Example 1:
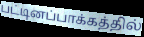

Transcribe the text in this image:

பட்டினப்பாக்கத்தில்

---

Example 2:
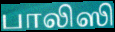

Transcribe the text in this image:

பாலிஸி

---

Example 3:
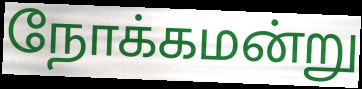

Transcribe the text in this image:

நோக்கமன்று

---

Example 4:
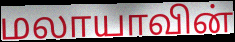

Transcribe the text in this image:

மலாயாவின்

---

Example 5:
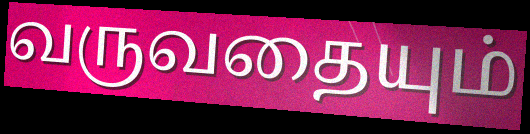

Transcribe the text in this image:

வருவதையும்